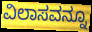
ವಿಲಾಸವನ್ನೂ